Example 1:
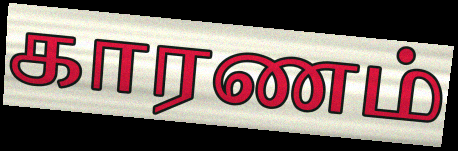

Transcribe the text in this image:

காரணம்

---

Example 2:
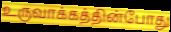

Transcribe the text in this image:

உருவாக்கத்தின்போது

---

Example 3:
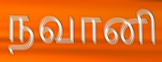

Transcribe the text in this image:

நவானி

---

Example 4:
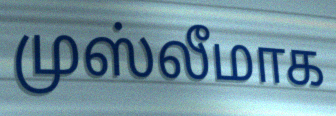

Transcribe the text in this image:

முஸ்லீமாக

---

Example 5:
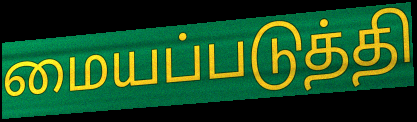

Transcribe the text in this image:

மையப்படுத்தி